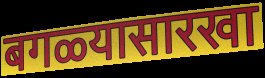
बगळ्यासारखा